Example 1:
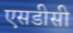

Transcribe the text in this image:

एसडीसी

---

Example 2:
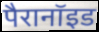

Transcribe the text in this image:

पैरानॉइड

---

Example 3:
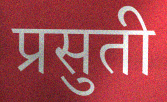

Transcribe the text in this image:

प्रसुती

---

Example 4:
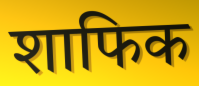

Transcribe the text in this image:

शाफिक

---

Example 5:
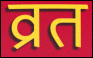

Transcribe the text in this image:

व्रत